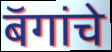
बॅगांचे